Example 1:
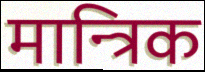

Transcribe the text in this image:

मान्त्रिक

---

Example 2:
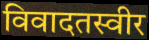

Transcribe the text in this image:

विवादतस्वीर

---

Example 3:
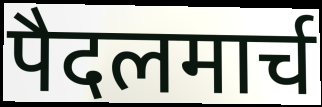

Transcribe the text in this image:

पैदलमार्च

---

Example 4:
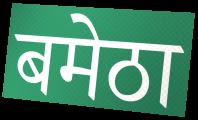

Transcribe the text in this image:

बमेठा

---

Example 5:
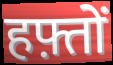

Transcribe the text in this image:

हफ़्तों